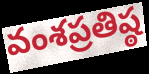
వంశప్రతిష్ఠ